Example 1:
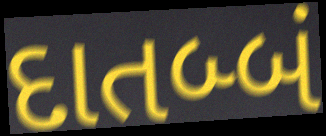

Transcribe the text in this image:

દાતબ્બં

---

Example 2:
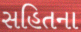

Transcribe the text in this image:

સહિતના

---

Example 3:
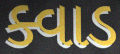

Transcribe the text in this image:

ક્વાડ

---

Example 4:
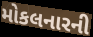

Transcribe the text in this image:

મોકલનારની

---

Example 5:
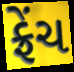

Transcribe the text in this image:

ફ્રેંચ